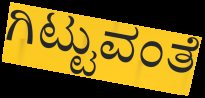
ಗಿಟ್ಟುವಂತೆ